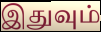
இதுவும்